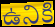
ఉనికి